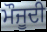
ਮੌਜੂਦੀ